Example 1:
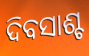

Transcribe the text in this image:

ଦିବସାଶ୍ଚ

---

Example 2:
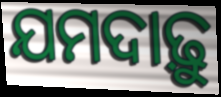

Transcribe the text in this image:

ଯମଦାଢ଼ୁ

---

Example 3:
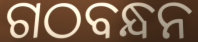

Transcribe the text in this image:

ଗଠବନ୍ଧନ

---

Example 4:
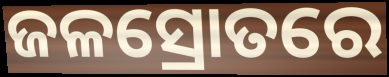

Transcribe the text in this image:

ଜଳସ୍ରୋତରେ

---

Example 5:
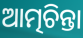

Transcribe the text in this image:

ଆତ୍ମଚିନ୍ତା